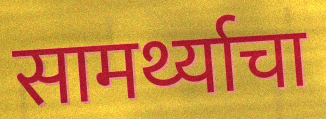
सामर्थ्याचा